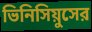
ভিনিসিয়ুসের